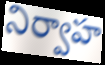
నిర్వాహ